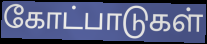
கோட்பாடுகள்